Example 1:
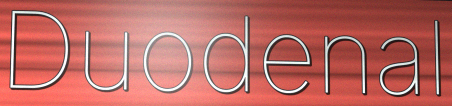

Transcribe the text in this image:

Duodenal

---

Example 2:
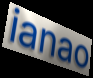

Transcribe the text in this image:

ianao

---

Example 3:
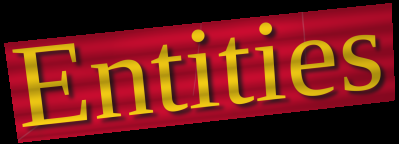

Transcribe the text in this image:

Entities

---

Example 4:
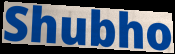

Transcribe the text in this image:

Shubho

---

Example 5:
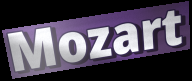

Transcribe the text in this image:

Mozart